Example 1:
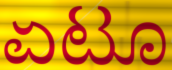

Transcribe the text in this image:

ಏಟೂ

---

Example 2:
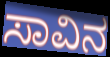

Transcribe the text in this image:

ಸಾವಿನ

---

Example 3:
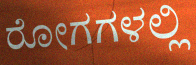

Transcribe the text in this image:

ರೋಗಗಳಲ್ಲಿ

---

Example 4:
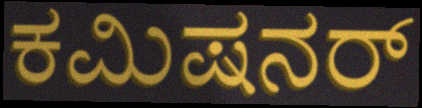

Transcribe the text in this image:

ಕಮಿಷನರ್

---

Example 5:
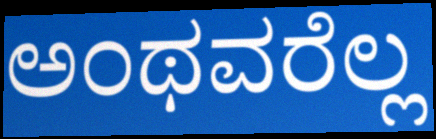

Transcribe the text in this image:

ಅಂಥವರೆಲ್ಲ